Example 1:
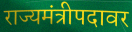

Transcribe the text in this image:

राज्यमंत्रीपदावर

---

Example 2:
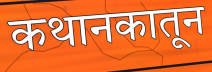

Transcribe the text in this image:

कथानकातून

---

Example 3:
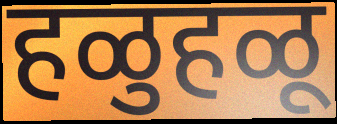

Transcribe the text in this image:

हळुहळू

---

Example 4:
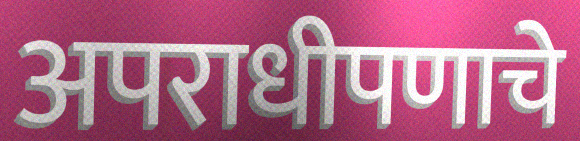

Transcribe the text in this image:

अपराधीपणाचे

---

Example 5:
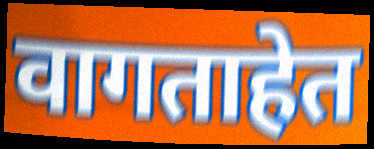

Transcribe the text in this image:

वागताहेत